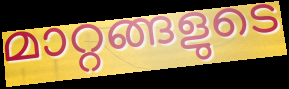
മാറ്റങ്ങളുടെ